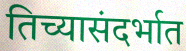
तिच्यासंदर्भात